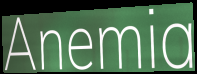
Anemia